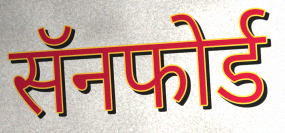
सॅनफोर्ड